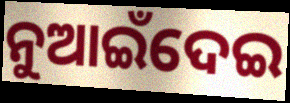
ନୁଆଇଁଦେଇ